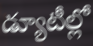
డ్యూటీల్లో